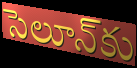
సెలూన్‌కు